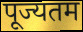
पूज्यतम